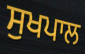
ਸੁਖਪਾਲ